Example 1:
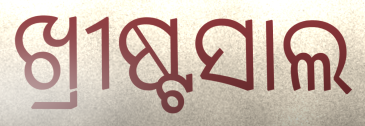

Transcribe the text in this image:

ଖ୍ରୀଷ୍ଟସାଲ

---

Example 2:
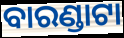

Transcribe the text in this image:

ବାରଣ୍ଡାଟା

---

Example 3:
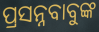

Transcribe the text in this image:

ପ୍ରସନ୍ନବାବୁଙ୍କ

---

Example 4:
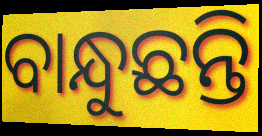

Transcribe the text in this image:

ବାନ୍ଧୁଛନ୍ତି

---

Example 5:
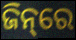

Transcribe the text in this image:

ଜିନ୍‌ରେ